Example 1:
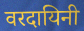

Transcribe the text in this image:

वरदायिनी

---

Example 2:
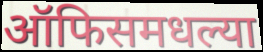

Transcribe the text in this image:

ऑफिसमधल्या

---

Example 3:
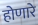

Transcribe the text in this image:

होणारे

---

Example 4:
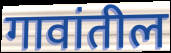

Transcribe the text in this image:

गावांतील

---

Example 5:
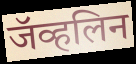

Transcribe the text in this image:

जॅव्हलिन